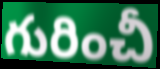
గురించీ